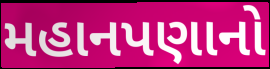
મહાનપણાનો